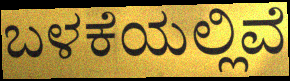
ಬಳಕೆಯಲ್ಲಿವೆ